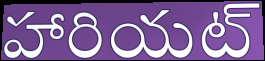
హారియట్